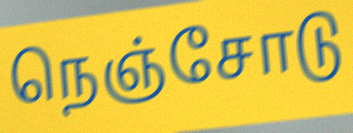
நெஞ்சோடு